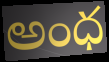
అంధ